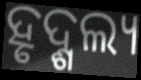
ହୃଦ୍ଶଲ୍ୟ